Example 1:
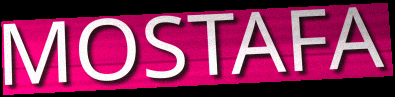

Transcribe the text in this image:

MOSTAFA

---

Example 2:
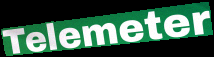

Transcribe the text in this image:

Telemeter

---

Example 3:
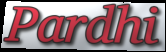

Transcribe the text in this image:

Pardhi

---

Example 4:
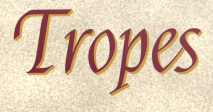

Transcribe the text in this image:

Tropes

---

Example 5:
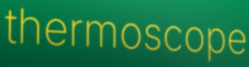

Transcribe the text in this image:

thermoscope